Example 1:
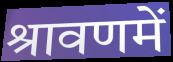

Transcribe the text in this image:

श्रावणमें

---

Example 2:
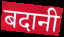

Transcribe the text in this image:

बदानी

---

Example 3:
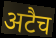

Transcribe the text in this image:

अटैच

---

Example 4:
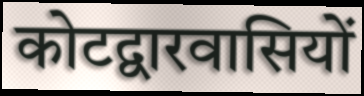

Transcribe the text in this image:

कोटद्वारवासियों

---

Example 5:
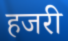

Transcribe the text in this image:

हजरी